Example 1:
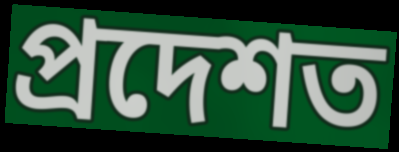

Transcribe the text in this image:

প্ৰদেশত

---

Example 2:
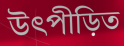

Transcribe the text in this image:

উৎপীড়িত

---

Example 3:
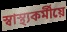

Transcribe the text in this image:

স্বাস্থ্যকৰ্মীয়ে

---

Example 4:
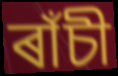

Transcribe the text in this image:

ৰাঁচী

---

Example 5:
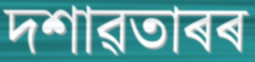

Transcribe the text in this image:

দশাৱতাৰৰ